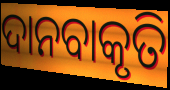
ଦାନବାକୃତି